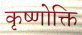
कृष्णोक्ति